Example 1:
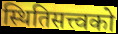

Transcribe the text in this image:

स्थितिसत्त्वको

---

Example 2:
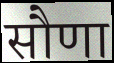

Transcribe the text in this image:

सौणा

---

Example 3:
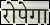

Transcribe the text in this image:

रोपेगा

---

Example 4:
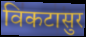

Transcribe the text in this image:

विकटासुर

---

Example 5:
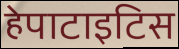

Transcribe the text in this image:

हेपाटाइटिस